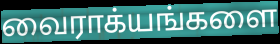
வைராக்யங்களை